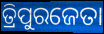
ତ୍ରିପୁରଜେତା